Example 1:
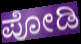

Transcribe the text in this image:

ಪೋಡಿ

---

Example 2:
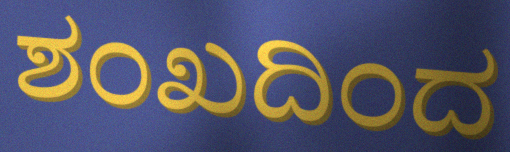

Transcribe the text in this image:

ಶಂಖದಿಂದ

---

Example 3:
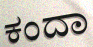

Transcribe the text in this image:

ಕಂದಾ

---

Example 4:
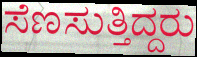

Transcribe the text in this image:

ಸೆಣಸುತ್ತಿದ್ದರು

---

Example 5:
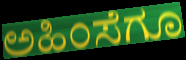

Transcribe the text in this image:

ಅಹಿಂಸೆಗೂ